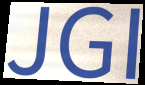
JGI